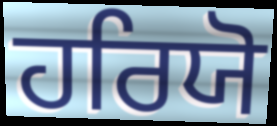
ਹਰਿਯੋ